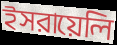
ইসরায়েলি